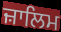
ਜ਼ਾਲਿਮ